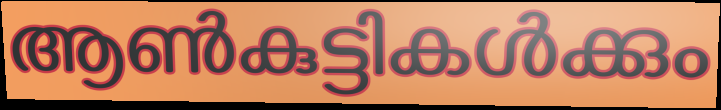
ആൺകുട്ടികൾക്കും